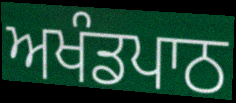
ਅਖੰਡਪਾਠ